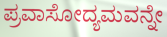
ಪ್ರವಾಸೋದ್ಯಮವನ್ನೇ